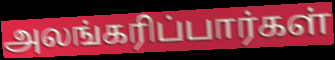
அலங்கரிப்பார்கள்